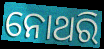
ନୋଥରି